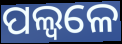
ପଲ୍ୱଳେ